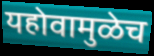
यहोवामुळेच